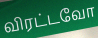
விரட்டவோ